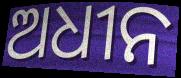
ଅଧୀନ